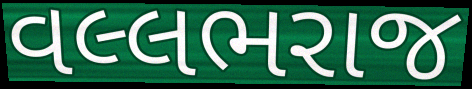
વલ્લભરાજ